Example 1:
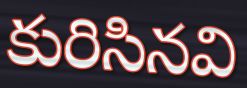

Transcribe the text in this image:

కురిసినవి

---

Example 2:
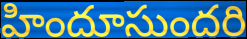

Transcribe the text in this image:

హిందూసుందరి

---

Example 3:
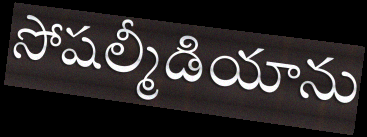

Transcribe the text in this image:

సోషల్మీడియాను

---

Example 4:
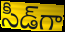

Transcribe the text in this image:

సీడ్‌గా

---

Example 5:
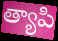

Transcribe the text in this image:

త్యాపి